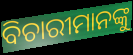
ବିଚାରୀମାନଙ୍କୁ